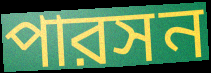
পারসন